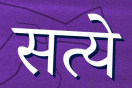
सत्ये